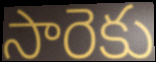
సారెకు